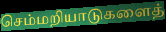
செம்மறியாடுகளைத்